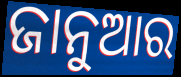
ଜାନୁଆର